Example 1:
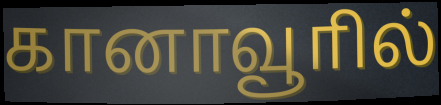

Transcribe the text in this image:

கானாவூரில்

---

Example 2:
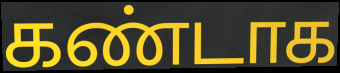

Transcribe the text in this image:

கண்டாக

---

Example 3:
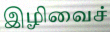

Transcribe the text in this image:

இழிவைச்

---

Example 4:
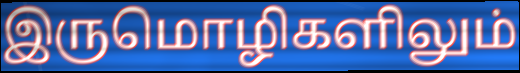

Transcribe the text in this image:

இருமொழிகளிலும்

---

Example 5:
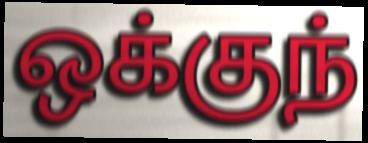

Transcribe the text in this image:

ஒக்குந்